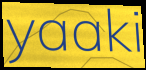
yaaki